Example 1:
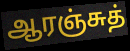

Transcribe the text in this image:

ஆரஞ்சுத்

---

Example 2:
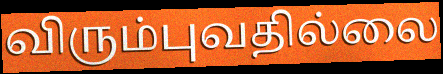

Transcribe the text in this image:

விரும்புவதில்லை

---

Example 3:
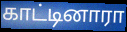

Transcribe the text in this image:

காட்டினாரா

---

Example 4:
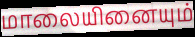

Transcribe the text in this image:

மாலையினையும்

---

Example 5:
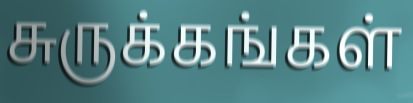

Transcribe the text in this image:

சுருக்கங்கள்